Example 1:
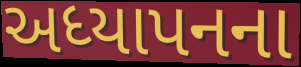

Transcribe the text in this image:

અધ્યાપનના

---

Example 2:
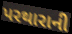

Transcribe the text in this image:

પરથારાની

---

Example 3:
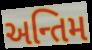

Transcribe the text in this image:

અન્તિમ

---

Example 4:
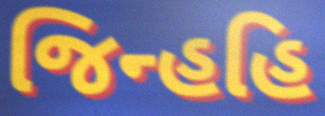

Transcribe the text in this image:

જિન્હહિ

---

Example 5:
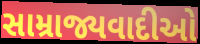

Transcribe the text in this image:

સામ્રાજ્યવાદીઓ